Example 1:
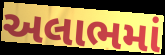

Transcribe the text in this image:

અલાભમાં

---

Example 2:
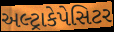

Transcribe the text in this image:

અલ્ટ્રાકેપેસિટર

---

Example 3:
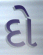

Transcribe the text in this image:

દો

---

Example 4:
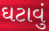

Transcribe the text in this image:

ઘટાવું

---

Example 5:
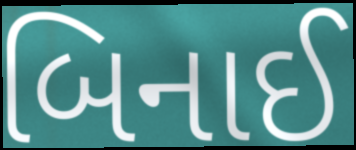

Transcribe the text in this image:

બિનાઈ